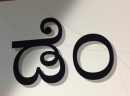
ಡೆಂ